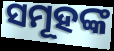
ସମୂହଙ୍କ